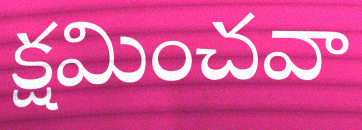
క్షమించవా